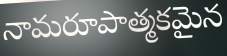
నామరూపాత్మకమైన